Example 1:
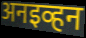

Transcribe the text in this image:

अनइव्हन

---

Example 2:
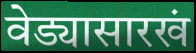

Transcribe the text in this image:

वेड्यासारखं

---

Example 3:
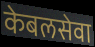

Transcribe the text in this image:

केबलसेवा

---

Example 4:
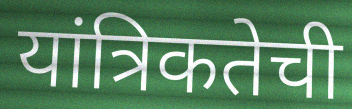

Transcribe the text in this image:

यांत्रिकतेची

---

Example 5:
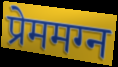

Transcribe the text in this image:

प्रेममग्न